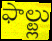
ఫాల్ట్లు